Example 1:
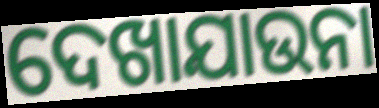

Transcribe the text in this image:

ଦେଖାଯାଉନା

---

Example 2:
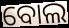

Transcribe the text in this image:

ବୋଲ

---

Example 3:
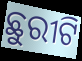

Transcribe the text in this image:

ଛୁରୀଟି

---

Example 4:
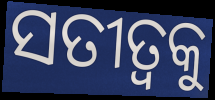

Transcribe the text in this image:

ସତୀତ୍ୱକୁ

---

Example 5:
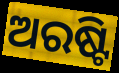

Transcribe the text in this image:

ଅରଷ୍ଟି